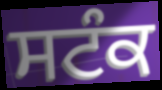
ਸਟੰਕ